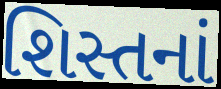
શિસ્તનાં